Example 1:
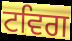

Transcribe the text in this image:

ਟਵਿਗ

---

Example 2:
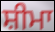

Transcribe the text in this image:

ਸ਼ੀਮਾ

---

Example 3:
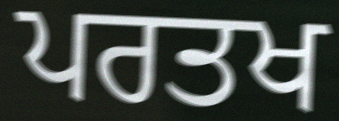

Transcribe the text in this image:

ਪਰਤਖ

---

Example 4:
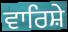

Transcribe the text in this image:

ਵਾਰਿਸ਼ੇ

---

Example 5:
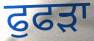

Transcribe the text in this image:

ਫੁਫੜਾ